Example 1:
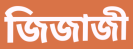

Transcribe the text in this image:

জিজাজী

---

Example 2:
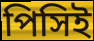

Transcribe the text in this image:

পিসিই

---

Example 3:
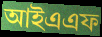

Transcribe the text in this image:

আইএএফ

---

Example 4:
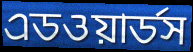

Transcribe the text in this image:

এডওয়ার্ডস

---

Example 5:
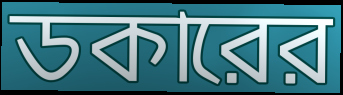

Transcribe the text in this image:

ডকারের